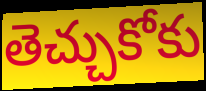
తెచ్చుకోకు